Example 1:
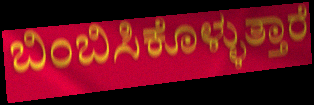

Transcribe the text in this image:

ಬಿಂಬಿಸಿಕೊಳ್ಳುತ್ತಾರೆ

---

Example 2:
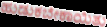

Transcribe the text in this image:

ಹುಡುಕಬೇಕಾಯಿತು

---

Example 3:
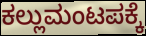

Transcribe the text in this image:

ಕಲ್ಲುಮಂಟಪಕ್ಕೆ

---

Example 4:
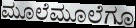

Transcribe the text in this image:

ಮೂಲೆಮೂಲೆಗೂ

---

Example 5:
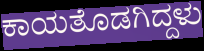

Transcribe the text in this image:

ಕಾಯತೊಡಗಿದ್ದಳು